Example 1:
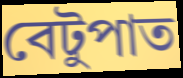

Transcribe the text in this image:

বেটুপাত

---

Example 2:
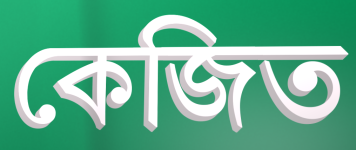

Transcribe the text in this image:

কেজিত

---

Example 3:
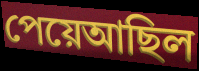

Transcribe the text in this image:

পেয়েআছিল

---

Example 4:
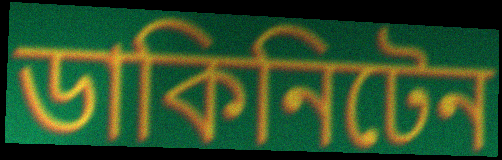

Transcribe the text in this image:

ডাকিনিটেন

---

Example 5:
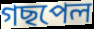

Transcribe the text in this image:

গছপেল